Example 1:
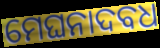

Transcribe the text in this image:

ମେଘନାଦବଧ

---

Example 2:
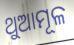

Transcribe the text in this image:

ଥୁଆମୂଳ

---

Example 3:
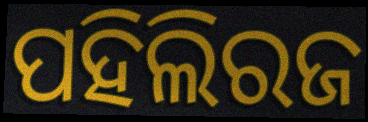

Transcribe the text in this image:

ପହିଲିରଜ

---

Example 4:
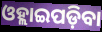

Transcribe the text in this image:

ଓହ୍ଲାଇପଡ଼ିବା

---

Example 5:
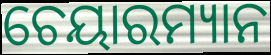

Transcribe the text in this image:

ଚେୟାରମ୍ୟାନ